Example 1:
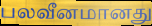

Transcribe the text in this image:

பலவீனமானது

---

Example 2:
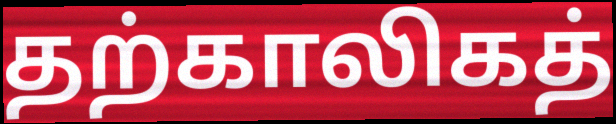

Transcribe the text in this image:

தற்காலிகத்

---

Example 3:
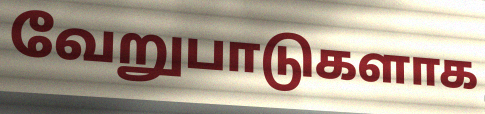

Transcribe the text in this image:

வேறுபாடுகளாக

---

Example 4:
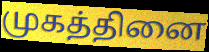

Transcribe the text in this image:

முகத்தினை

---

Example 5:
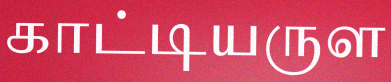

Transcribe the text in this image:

காட்டியருள